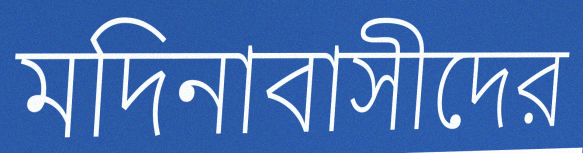
মদিনাবাসীদের